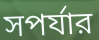
সপর্যার